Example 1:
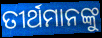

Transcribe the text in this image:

ତୀର୍ଥମାନଙ୍କୁ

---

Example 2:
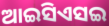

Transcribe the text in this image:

ଆଇସିଏସଇ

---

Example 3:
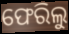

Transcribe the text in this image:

ଫେରିଲୁ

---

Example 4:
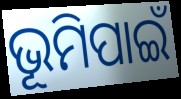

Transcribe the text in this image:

ଭୂମିପାଇଁ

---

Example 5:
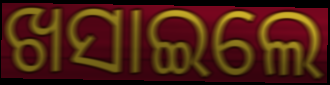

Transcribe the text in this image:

ଖସାଇଲେ